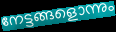
നേട്ടങ്ങളൊന്നും